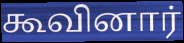
கூவினார்